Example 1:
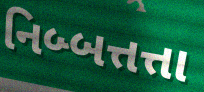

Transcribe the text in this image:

નિબ્બત્તત્તા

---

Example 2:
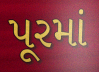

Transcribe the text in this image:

પૂરમાં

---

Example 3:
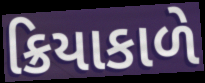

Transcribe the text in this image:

ક્રિયાકાળે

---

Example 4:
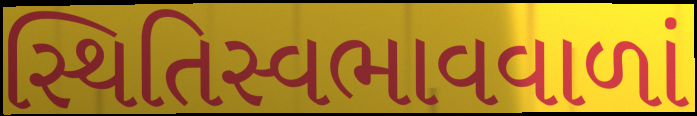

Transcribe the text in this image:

સ્થિતિસ્વભાવવાળાં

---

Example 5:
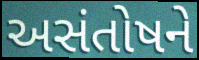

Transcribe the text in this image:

અસંતોષને